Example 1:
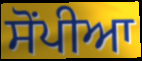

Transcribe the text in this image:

ਸੋਂਪੀਆ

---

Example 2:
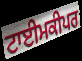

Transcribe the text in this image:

ਟਾਈਮਕੀਪਰ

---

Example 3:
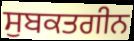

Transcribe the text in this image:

ਸੁਬਕਤਗੀਨ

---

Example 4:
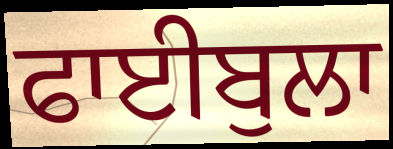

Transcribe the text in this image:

ਫਾਈਬੁਲਾ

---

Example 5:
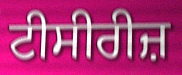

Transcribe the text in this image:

ਟੀਸੀਰੀਜ਼